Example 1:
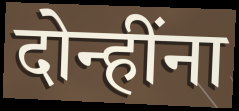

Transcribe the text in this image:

दोन्हींना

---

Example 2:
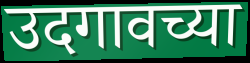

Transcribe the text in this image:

उदगावच्या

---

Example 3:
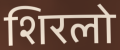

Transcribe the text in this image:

शिरलो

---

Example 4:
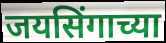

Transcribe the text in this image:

जयसिंगाच्या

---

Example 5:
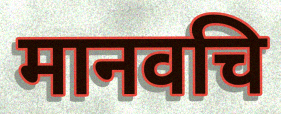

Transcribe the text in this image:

मानवचि